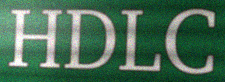
HDLC